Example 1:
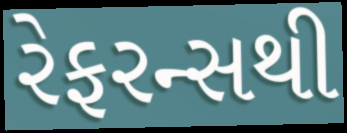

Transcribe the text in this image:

રેફરન્સથી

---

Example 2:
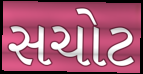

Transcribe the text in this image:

સચોટ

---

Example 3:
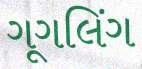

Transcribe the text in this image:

ગૂગલિંગ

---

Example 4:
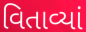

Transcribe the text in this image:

વિતાવ્યાં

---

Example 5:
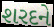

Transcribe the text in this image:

શરદને